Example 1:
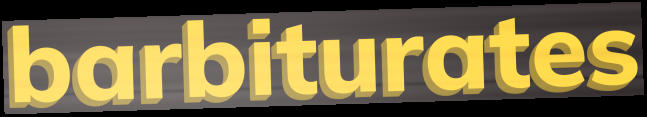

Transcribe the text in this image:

barbiturates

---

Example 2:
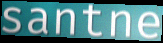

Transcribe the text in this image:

santne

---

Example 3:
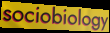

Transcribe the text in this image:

sociobiology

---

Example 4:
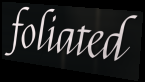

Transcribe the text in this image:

foliated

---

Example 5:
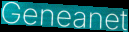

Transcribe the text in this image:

Geneanet